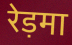
रेड़मा